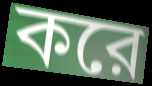
করে